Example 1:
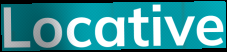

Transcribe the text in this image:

Locative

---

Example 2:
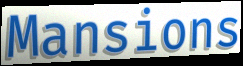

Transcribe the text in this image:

Mansions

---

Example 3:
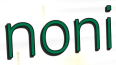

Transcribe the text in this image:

noni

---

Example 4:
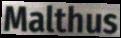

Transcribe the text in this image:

Malthus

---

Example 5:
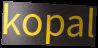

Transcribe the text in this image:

kopal